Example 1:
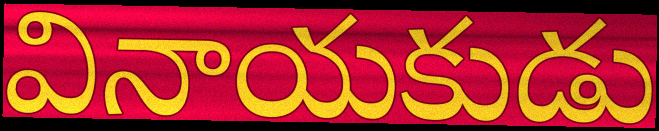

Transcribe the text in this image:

వినాయకుడు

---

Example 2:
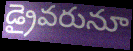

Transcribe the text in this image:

డ్రైవరునూ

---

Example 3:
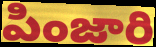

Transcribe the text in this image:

పింజారి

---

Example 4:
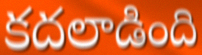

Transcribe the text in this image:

కదలాడింది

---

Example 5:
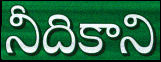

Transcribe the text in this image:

నీదికాని